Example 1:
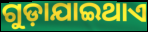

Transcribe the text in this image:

ଗୁଡ଼ାଯାଇଥାଏ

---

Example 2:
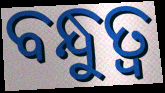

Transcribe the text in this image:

ବନ୍ଧୁତ୍ୱ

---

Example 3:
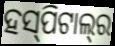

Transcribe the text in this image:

ହସ୍‍ପିଟାଲ୍‍ର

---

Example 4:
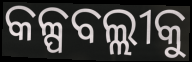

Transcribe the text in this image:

କଳ୍ପବଲ୍ଲୀକୁ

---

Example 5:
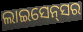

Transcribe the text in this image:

ଲାଇସେନ୍‌ସର